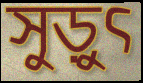
সুড়ুৎ